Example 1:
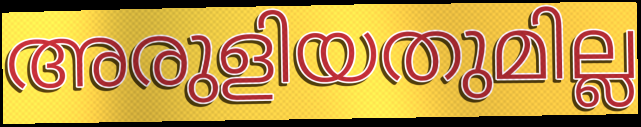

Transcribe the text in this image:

അരുളിയതുമില്ല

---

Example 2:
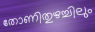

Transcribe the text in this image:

തോണിതുഴച്ചിലും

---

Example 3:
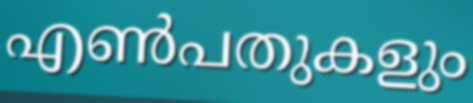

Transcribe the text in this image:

എൺപതുകളും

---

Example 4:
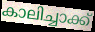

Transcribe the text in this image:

കാലിച്ചാക്ക്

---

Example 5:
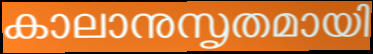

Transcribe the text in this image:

കാലാനുസൃതമായി